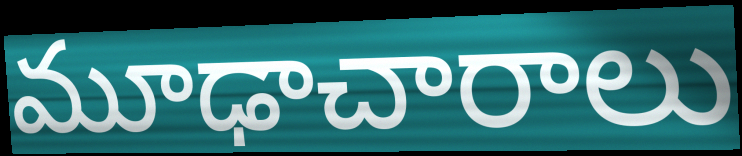
మూఢాచారాలు